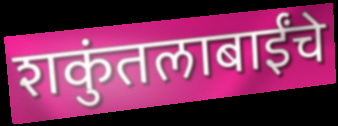
शकुंतलाबाईंचे